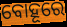
ବୋହୂରେ